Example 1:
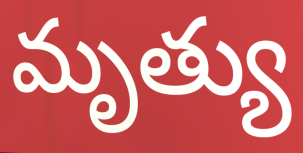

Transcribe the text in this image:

మృత్యు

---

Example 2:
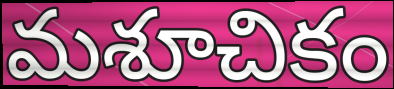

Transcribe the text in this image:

మశూచికం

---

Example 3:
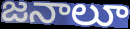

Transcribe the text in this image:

జనాలూ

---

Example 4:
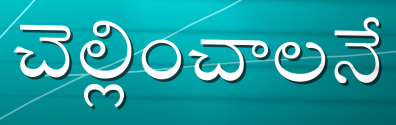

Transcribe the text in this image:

చెల్లించాలనే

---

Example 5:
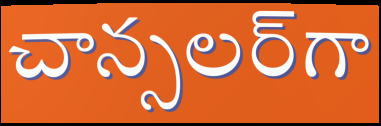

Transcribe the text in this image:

చాన్సలర్‌గా